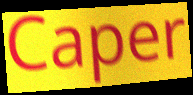
Caper